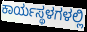
ಕಾರ್ಯಸ್ಥಳಗಳಲ್ಲಿ